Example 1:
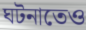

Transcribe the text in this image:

ঘটনাতেও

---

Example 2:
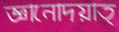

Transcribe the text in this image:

জ্ঞানোদয়াত্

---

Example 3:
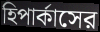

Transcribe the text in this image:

হিপার্কাসের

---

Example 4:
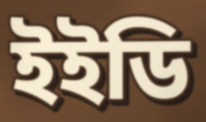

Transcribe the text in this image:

ইইডি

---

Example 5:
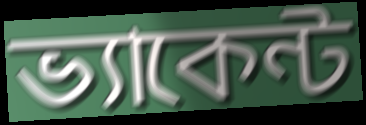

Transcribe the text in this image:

ভ্যাকেন্ট